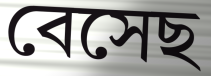
বেসেছ